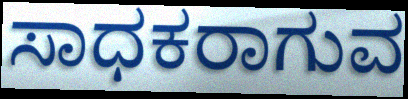
ಸಾಧಕರಾಗುವ